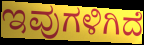
ಇವುಗಳಿಗಿದೆ